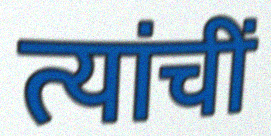
त्यांचीं